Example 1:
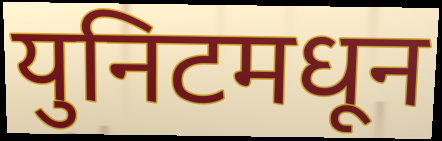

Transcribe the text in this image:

युनिटमधून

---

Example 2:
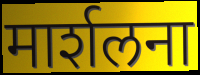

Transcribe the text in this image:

मार्शलना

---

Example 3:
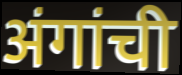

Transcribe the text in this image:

अंगांची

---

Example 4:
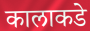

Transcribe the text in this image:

कालाकडे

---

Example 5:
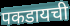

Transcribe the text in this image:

पकडायची